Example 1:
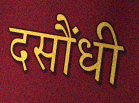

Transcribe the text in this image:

दसौंधी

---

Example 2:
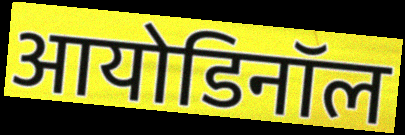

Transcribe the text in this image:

आयोडिनॉल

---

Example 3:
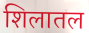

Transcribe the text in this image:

शिलातल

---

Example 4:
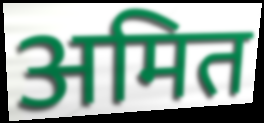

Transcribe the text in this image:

अमित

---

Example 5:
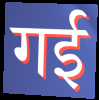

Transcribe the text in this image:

गई